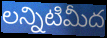
లన్నిటిమీద